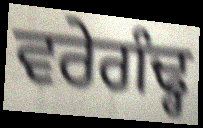
ਵਰੇਗੰਢ੍ਹ